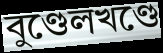
বুণ্ডেলখণ্ডে